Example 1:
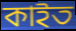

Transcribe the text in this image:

কাইত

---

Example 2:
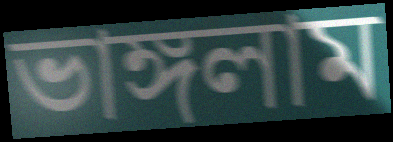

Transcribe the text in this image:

ভাঙ্গলাম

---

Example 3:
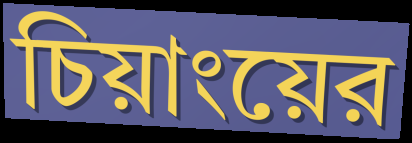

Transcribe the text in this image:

চিয়াংয়ের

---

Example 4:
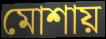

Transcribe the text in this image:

মোশায়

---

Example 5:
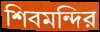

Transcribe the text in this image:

শিবমন্দির